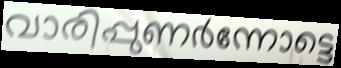
വാരിപ്പുണർന്നോട്ടെ